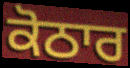
ਕੋਠਾਰ